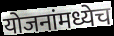
योजनांमध्येच